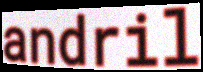
andril